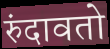
रुंदावतो